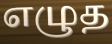
எழுத